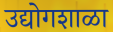
उद्योगशाळा